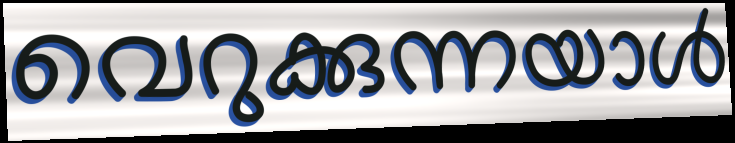
വെറുക്കുന്നയാൾ